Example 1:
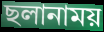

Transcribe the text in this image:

ছলানাময়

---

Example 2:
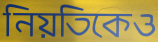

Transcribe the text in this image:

নিয়তিকেও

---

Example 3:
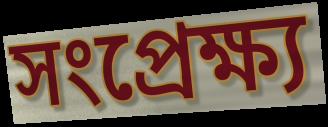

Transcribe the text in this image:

সংপ্রেক্ষ্য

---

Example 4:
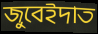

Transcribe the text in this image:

জুবেইদাত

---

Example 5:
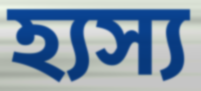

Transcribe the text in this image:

হ্যস্য